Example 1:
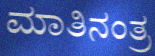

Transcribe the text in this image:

ಮಾತಿನಂತ್ರ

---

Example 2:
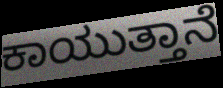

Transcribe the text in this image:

ಕಾಯುತ್ತಾನೆ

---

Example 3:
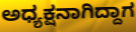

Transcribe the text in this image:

ಅಧ್ಯಕ್ಷನಾಗಿದ್ದಾಗ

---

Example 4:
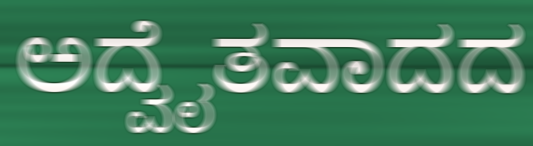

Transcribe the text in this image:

ಅದ್ವೈತವಾದದ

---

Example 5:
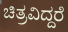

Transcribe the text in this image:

ಚಿತ್ರವಿದ್ದರೆ